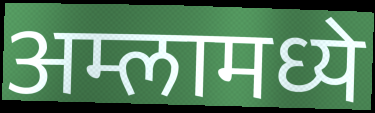
अम्लामध्ये